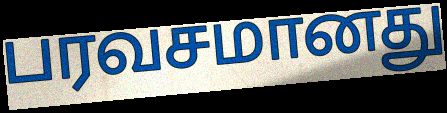
பரவசமானது